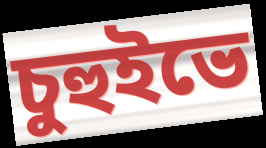
চুহুইভে